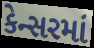
કેન્સરમાં